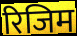
रिजिम